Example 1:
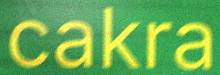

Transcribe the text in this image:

cakra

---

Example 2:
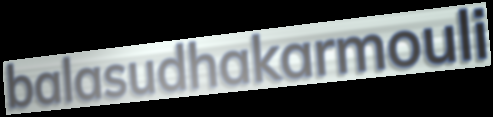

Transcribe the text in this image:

balasudhakarmouli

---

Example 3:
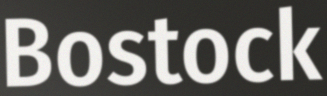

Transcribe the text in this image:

Bostock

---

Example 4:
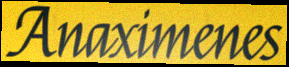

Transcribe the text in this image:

Anaximenes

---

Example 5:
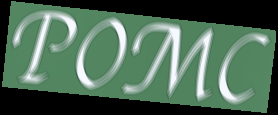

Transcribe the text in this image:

POMC